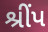
શ્રીંપ